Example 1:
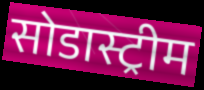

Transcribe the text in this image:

सोडास्ट्रीम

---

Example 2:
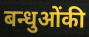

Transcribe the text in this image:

बन्धुओंकी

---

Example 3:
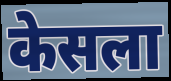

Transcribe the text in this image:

केसला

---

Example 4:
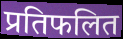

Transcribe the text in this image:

प्रतिफलित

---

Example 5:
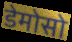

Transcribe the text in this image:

डेमोसो